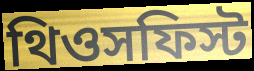
থিওসফিস্ট